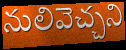
నులివెచ్చని